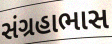
સંગ્રહાભાસ